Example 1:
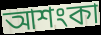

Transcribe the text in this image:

আশংকা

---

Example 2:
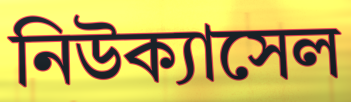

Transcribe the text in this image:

নিউক্যাসেল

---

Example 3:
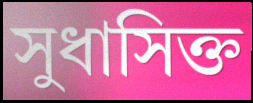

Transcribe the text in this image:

সুধাসিক্ত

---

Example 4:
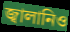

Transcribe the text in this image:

জ্বালানিও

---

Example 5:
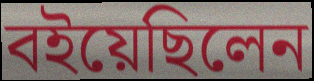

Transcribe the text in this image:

বইয়েছিলেন